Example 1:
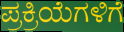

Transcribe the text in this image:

ಪ್ರಕ್ರಿಯೆಗಳಿಗೆ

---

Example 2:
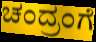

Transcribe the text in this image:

ಚಂದ್ರಂಗೆ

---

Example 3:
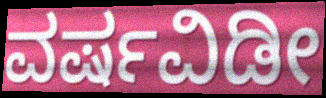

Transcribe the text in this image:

ವರ್ಷವಿಡೀ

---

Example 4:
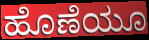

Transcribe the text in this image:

ಹೊಣೆಯೂ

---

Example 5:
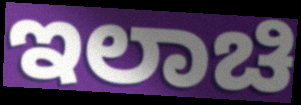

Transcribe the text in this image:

ಇಲಾಚಿ